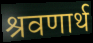
श्रवणार्थ